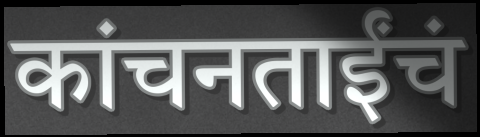
कांचनताईंचं